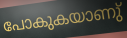
പോകുകയാണു്